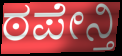
ಠಪೇನ್ತಿ